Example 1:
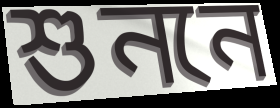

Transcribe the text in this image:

শুননে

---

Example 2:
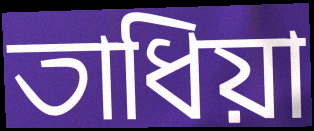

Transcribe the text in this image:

তাধিয়া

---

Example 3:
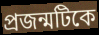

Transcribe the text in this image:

প্রজন্মটিকে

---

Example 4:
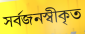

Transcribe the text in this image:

সর্বজনস্বীকৃত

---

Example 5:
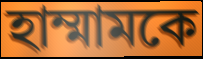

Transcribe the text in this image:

হাম্মামকে